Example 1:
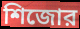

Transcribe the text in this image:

শিজোর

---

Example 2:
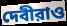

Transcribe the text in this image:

দেবীরাও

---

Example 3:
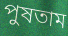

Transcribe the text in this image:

পুষতাম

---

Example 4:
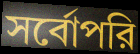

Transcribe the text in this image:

সর্বোপরি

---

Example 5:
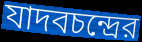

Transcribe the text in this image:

যাদবচন্দ্রের